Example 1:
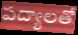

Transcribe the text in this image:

పద్యాలతో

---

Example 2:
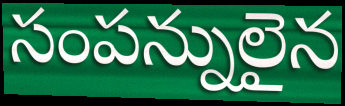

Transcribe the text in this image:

సంపన్నులైన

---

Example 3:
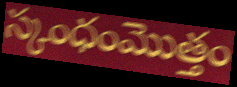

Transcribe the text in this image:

స్కంధంమొత్తం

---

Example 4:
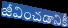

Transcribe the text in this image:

జీవించడానికీ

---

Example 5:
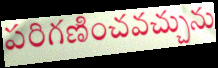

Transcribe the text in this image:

పరిగణించవచ్చును